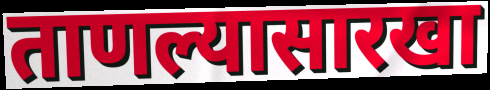
ताणल्यासारखा